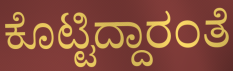
ಕೊಟ್ಟಿದ್ದಾರಂತೆ